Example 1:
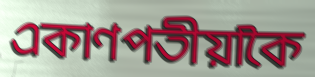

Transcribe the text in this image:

একাণপতীয়াকৈ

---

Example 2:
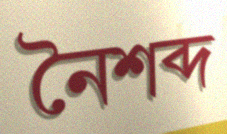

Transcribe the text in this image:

নৈশব্দ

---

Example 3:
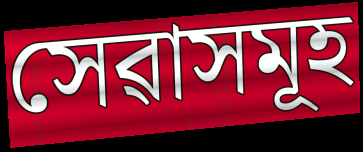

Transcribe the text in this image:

সেৱাসমূহ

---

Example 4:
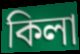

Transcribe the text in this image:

কিলা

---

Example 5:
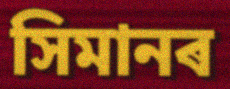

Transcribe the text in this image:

সিমানৰ